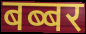
बब्बर